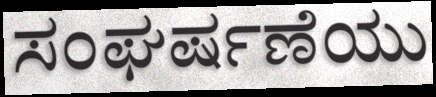
ಸಂಘರ್ಷಣೆಯು